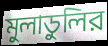
মুলাডুলির